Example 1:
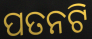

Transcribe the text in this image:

ପତନଟି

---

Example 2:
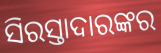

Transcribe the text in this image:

ସିରସ୍ତାଦାରଙ୍କର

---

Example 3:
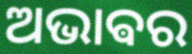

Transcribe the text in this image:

ଅଭାଵର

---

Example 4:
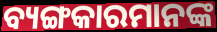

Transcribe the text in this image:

ବ୍ୟଙ୍ଗକାରମାନଙ୍କ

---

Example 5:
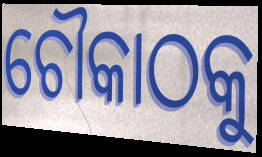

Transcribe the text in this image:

ଚୌକାଠକୁ